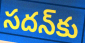
సదన్‌కు